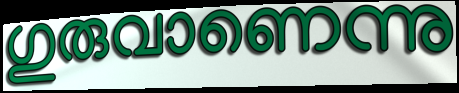
ഗുരുവാണെന്നു